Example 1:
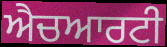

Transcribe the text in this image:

ਐਚਆਰਟੀ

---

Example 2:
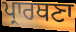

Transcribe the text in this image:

ਪ੍ਰਾਰਥਣਾ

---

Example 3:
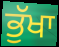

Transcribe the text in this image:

ਭੁੱਖਾ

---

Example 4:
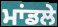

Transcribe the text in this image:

ਮਾਂਡਲੇ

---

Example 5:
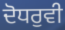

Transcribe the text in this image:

ਦੋਧਰੁਵੀ